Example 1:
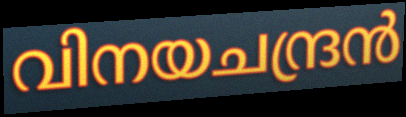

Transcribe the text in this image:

വിനയചന്ദ്രൻ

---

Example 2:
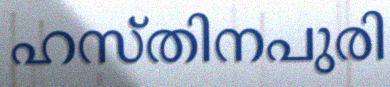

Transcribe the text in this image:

ഹസ്തിനപുരി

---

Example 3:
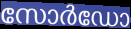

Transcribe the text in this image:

സോർഡോ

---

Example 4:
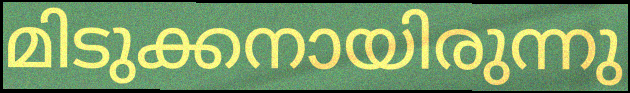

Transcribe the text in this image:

മിടുക്കനായിരുന്നു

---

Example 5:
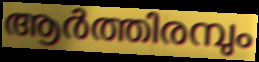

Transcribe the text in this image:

ആർത്തിരമ്പും